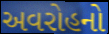
અવરોહનો